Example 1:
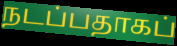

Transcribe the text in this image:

நடப்பதாகப்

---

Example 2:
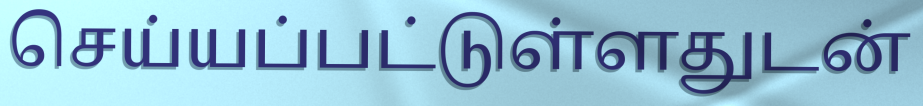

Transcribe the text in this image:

செய்யப்பட்டுள்ளதுடன்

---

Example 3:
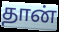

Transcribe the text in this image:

தான்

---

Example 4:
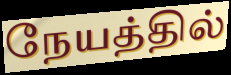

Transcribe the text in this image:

நேயத்தில்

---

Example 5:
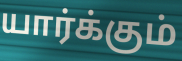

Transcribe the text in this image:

யார்க்கும்